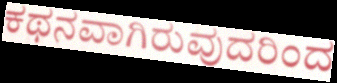
ಕಥನವಾಗಿರುವುದರಿಂದ